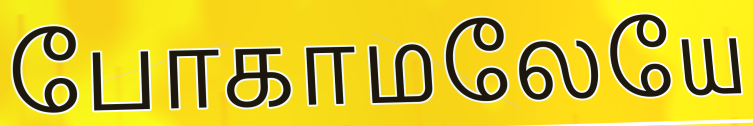
போகாமலேயே